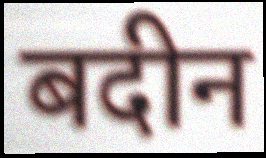
बदीन